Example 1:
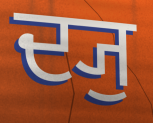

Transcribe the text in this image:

ਦ੍ਯੁ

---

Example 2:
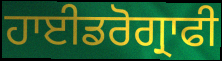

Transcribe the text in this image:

ਹਾਈਡਰੋਗ੍ਰਾਫੀ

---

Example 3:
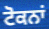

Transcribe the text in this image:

ਟੋਕਨਾਂ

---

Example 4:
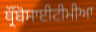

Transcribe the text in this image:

ਥ੍ਰੌਂਬੋਸਾਈਟੀਮੀਆ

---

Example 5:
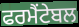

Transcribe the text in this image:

ਫਰਮੈਂਟੇਬਲ